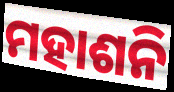
ମହାଶନି